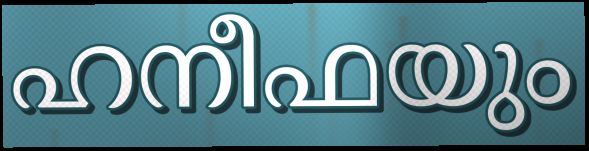
ഹനീഫയും